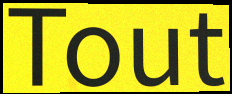
Tout